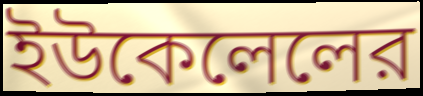
ইউকেলেলের